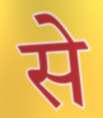
से